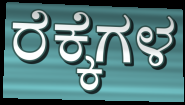
ರೆಕ್ಕೆಗಳ